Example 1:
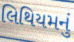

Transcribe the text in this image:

લિથિયમનું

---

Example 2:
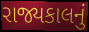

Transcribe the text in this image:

રાજ્યકાલનું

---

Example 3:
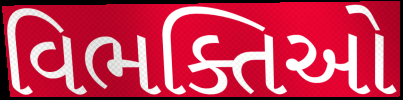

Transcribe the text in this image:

વિભક્તિઓ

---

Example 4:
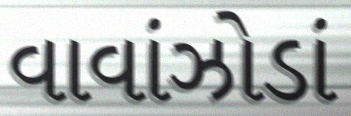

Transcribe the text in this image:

વાવાંઝોડાં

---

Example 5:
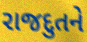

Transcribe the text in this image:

રાજદુતને